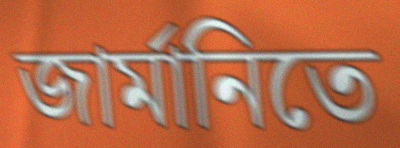
জার্মানিতে